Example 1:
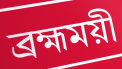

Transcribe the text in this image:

ব্রহ্মময়ী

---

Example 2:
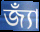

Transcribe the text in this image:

জ্যাঁ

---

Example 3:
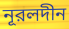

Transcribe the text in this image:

নূরলদীন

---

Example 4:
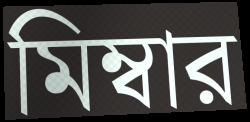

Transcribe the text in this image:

মিম্বার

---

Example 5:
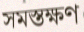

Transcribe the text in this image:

সমস্তক্ষণ